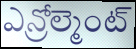
ఎన్రోల్మెంట్